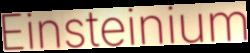
Einsteinium